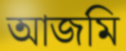
আজমি